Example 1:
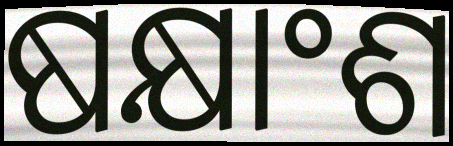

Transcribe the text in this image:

ଷକ୍ଷାଂଶ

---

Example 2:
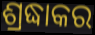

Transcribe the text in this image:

ଶ୍ରଦ୍ଧାକର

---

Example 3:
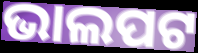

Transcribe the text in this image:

ଭାଲପଟ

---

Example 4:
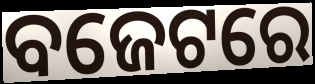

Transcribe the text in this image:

ବଜେଟରେ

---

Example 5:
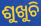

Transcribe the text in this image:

ଶୁଖୁଚି